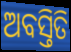
ଅବସ୍ତିତି